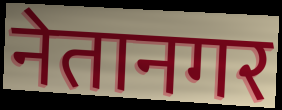
नेतानगर